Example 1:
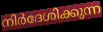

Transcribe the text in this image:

നിർദേശിക്കുന്ന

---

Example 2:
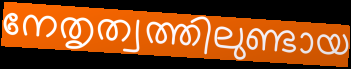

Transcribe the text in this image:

നേതൃത്വത്തിലുണ്ടായ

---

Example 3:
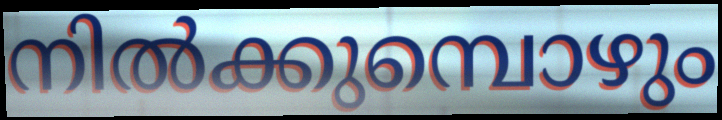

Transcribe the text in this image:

നിൽക്കുമ്പൊഴും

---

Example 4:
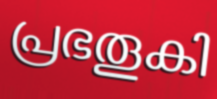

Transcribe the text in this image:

പ്രഭതൂകി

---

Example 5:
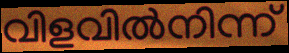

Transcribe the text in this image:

വിളവിൽനിന്ന്